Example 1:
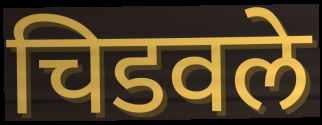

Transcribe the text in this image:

चिडवले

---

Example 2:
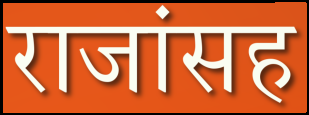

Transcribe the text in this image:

राजांसह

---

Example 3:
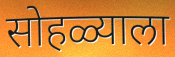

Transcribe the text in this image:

सोहळ्याला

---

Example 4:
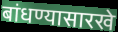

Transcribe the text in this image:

बांधण्यासारखे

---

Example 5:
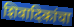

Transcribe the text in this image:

शिवादिकांचा